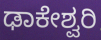
ಢಾಕೇಶ್ವರಿ